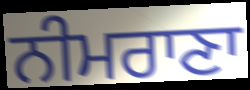
ਨੀਮਰਾਣਾ